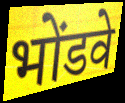
भोंडवे